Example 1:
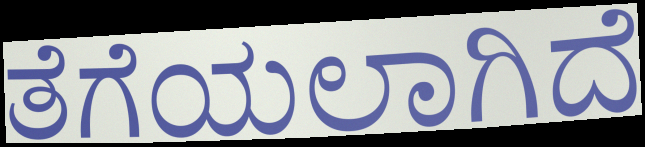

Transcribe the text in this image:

ತೆಗೆಯಲಾಗಿದೆ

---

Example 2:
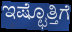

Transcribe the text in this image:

ಇಷ್ಟೊತ್ತಿಗೆ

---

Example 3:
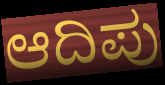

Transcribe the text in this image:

ಆದಿಪು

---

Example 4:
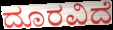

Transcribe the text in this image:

ದೂರವಿದೆ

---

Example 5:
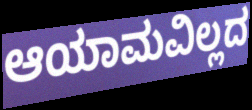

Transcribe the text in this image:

ಆಯಾಮವಿಲ್ಲದ